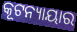
କୂଟନ୍ୟାୟାର